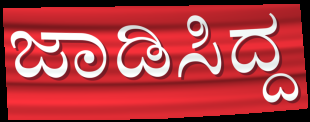
ಜಾಡಿಸಿದ್ದ